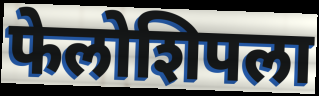
फेलोशिपला